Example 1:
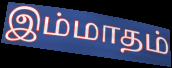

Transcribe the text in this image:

இம்மாதம்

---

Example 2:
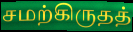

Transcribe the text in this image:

சமற்கிருதத்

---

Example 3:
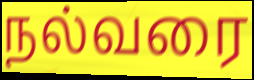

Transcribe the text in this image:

நல்வரை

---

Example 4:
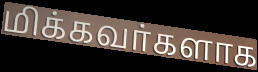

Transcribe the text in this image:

மிக்கவர்களாக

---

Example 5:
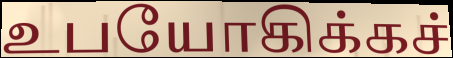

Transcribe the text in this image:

உபயோகிக்கச்